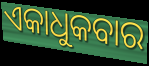
ଏକାଧୁକବାର